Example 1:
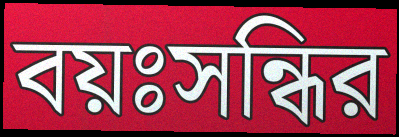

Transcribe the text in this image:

বয়ঃসন্ধির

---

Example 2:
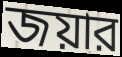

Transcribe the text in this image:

জয়ার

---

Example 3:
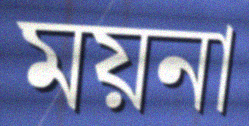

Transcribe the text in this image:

ময়না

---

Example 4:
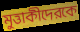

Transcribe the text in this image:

মুত্তাকীদেরকে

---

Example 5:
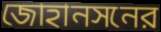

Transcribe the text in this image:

জোহানসনের